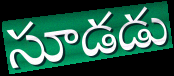
సూడడు